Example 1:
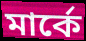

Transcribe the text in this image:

মাৰ্কে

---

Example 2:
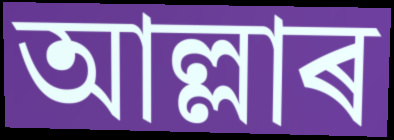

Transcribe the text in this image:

আল্লাৰ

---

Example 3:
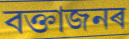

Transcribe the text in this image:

বক্তাজনৰ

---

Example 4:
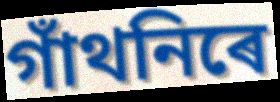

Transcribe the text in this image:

গাঁথনিৰে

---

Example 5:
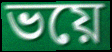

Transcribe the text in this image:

ভয়ে